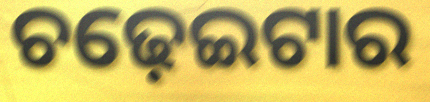
ଚଢ଼େଇଟାର